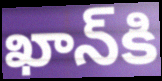
ఖాన్‌కి